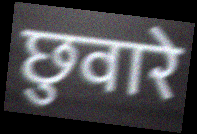
छुवारे